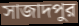
সাজাদপুর